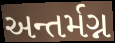
અન્તર્મગ્ન